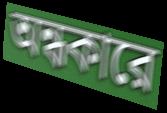
অন্ধকারে